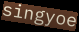
singyoe